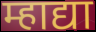
म्हाद्या